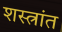
शस्त्रांत